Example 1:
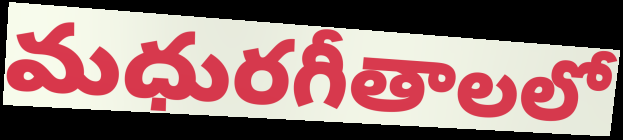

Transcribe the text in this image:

మధురగీతాలలో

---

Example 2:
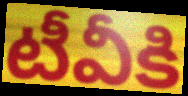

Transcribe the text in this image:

టీవీకి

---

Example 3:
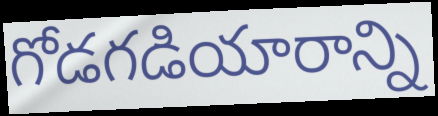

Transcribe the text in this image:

గోడగడియారాన్ని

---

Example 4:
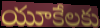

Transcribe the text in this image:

యూకేలకు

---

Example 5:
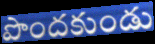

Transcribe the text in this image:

పొందకుండు